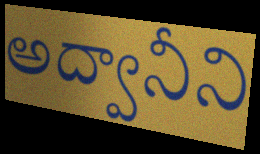
అద్వానీని